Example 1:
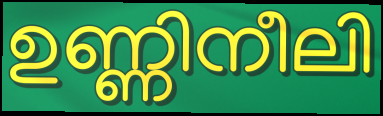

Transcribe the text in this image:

ഉണ്ണിനീലി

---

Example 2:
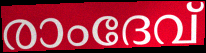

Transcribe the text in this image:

രാംദേവ്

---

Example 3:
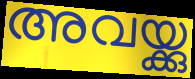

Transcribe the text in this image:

അവയ്ക്കു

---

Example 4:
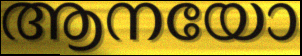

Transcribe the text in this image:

ആനയോ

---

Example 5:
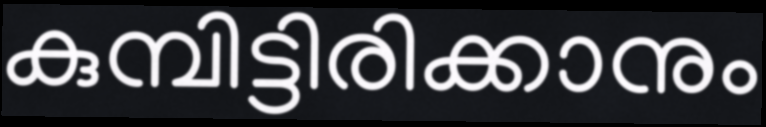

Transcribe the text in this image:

കുമ്പിട്ടിരിക്കാനും